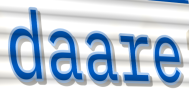
daare